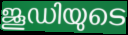
ജൂഡിയുടെ